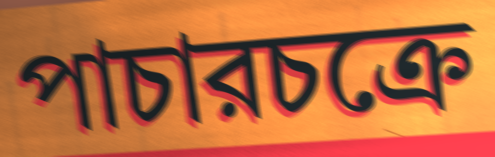
পাচারচক্রে